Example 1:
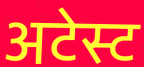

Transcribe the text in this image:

अटेस्ट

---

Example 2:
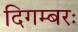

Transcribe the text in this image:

दिगम्बरः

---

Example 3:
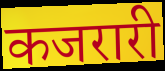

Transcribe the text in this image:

कजरारी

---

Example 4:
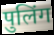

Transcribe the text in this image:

पुलिंग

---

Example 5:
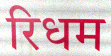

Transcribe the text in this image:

रिधम